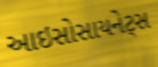
આઇસોસાયનેટ્સ